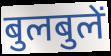
बुलबुलें